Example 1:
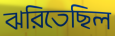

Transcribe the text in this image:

ঝরিতেছিল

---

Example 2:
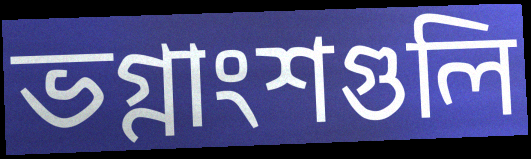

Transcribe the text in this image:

ভগ্নাংশগুলি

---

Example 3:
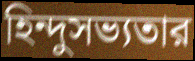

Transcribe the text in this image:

হিন্দুসভ্যতার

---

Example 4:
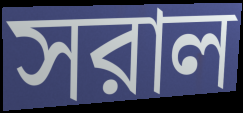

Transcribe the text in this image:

সরাল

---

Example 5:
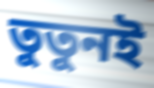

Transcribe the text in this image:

তুতুনই